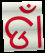
ଡାଁ